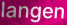
langen